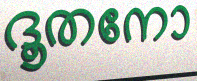
ദൂതനോ